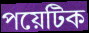
পয়েটিক